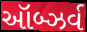
ઑબ્ઝર્વ